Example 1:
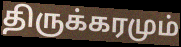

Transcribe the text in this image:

திருக்கரமும்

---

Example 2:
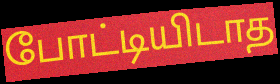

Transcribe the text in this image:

போட்டியிடாத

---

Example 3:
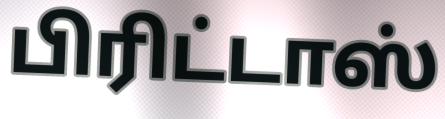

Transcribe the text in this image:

பிரிட்டாஸ்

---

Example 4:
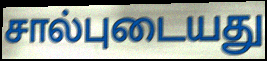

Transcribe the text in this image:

சால்புடையது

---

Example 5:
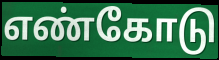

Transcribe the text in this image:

எண்கோடு